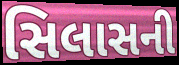
સિલાસની